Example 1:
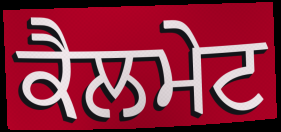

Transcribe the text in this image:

ਕੈਲਮੇਟ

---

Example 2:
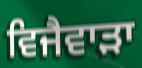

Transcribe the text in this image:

ਵਿਜੈਵਾੜਾ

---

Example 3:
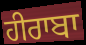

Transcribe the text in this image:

ਹੀਰਾਬਾ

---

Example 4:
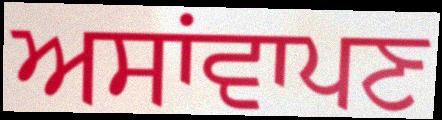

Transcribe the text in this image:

ਅਸਾਂਵਾਪਣ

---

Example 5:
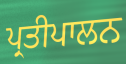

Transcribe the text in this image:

ਪ੍ਰਤੀਪਾਲਨ